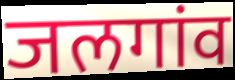
जलगांव